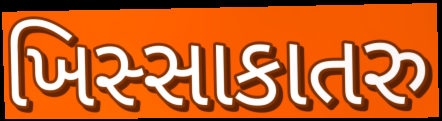
ખિસ્સાકાતરુ